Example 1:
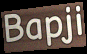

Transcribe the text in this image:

Bapji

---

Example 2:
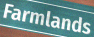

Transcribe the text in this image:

Farmlands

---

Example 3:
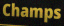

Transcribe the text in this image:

Champs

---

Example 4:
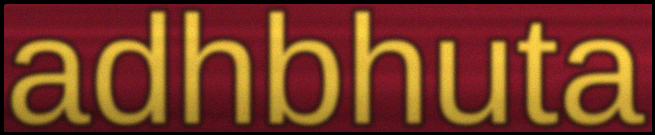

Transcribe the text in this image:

adhbhuta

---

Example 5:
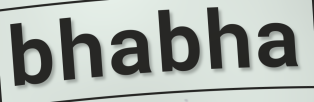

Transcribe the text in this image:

bhabha